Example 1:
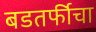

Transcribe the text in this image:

बडतर्फीचा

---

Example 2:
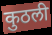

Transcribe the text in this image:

कुठली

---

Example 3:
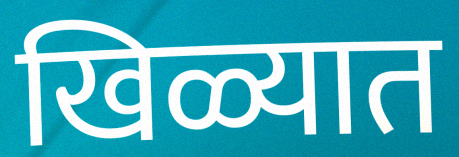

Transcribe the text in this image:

खिळ्यात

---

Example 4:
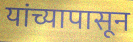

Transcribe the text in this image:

यांच्यापासून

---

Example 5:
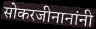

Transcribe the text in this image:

सोकरजीनानांनी